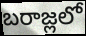
బరాజ్లలో